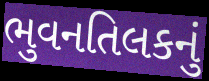
ભુવનતિલકનું